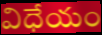
విధేయం